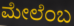
ಮೇಲೆಂಬ